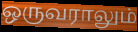
ஒருவராலும்